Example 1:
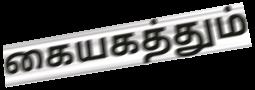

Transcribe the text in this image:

கையகத்தும்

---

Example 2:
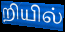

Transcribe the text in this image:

றியில்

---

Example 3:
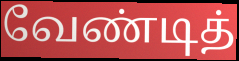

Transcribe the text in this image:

வேண்டித்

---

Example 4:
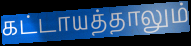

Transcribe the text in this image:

கட்டாயத்தாலும்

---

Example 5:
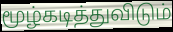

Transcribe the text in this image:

மூழ்கடித்துவிடும்